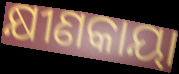
କ୍ଷୀଣକାୟା